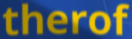
therof